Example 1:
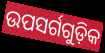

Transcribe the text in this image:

ଉପସର୍ଗଗୁଡ଼ିକ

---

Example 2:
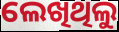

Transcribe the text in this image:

ଲେଖିଥିଲୁ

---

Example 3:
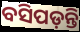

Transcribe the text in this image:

ବସିପଡ଼ନ୍ତି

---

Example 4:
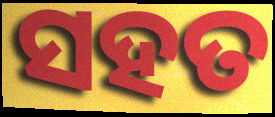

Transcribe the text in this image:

ସହତ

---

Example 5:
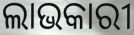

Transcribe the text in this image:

ଲାଭକାରୀ